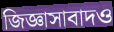
জিজ্ঞাসাবাদও